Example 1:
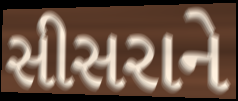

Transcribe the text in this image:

સીસરાને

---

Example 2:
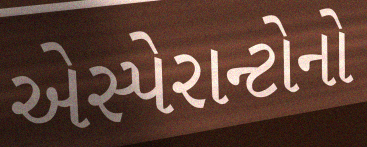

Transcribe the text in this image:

એસ્પેરાન્ટોનો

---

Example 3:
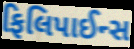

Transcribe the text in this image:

ફિલિપાઈન્સ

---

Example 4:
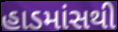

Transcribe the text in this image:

હાડમાંસથી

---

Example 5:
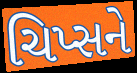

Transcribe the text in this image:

ચિપ્સને